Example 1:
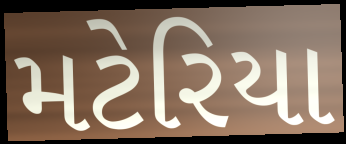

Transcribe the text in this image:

મટેરિયા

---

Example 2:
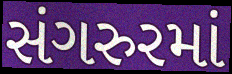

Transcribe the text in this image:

સંગરુરમાં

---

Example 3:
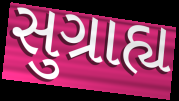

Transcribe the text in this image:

સુગ્રાહ્ય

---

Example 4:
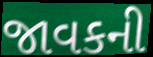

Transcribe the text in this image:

જાવકની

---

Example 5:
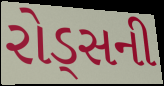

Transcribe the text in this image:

રોડ્સની